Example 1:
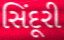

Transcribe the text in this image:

સિંદૂરી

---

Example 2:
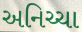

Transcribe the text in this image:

અનિચ્ચા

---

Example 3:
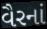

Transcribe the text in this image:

વૈરનાં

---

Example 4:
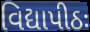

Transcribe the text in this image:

વિદ્યાપીઠઃ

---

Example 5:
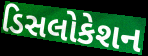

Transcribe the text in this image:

ડિસલોકેશન